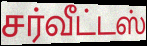
சர்வீட்டஸ்